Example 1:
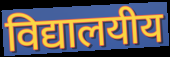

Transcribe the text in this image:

विद्यालयीय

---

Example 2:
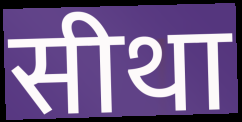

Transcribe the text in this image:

सीथा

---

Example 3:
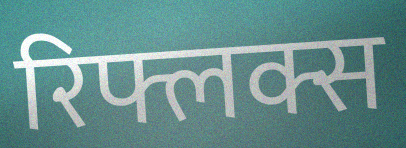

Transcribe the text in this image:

रिफ्लक्स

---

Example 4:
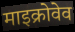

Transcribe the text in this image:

माइक्रोवेव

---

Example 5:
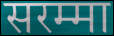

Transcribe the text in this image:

सरम्मा